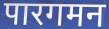
पारगमन